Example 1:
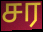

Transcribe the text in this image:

சர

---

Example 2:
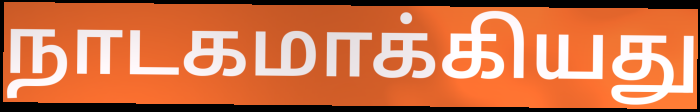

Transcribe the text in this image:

நாடகமாக்கியது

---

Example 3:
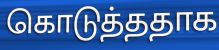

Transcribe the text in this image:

கொடுத்ததாக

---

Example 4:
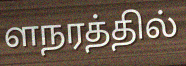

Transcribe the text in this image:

ளநரத்தில்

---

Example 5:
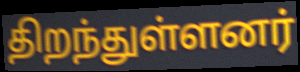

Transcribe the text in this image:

திறந்துள்ளனர்